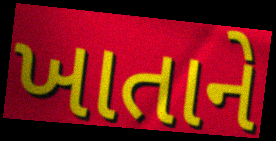
ખાતાને